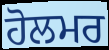
ਹੋਲਮਰ